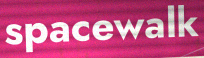
spacewalk